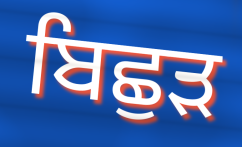
ਬਿਛੁੜ